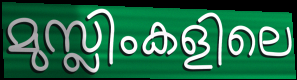
മുസ്ലിംകളിലെ